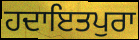
ਹਦਾਇਤਪੁਰਾ